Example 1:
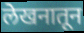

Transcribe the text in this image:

लेखनातून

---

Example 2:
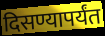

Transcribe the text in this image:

दिसण्यापर्यंत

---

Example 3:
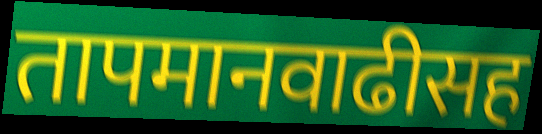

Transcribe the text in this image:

तापमानवाढीसह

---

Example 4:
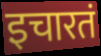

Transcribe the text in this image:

इचारतं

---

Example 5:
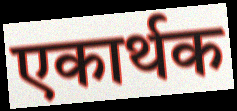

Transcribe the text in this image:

एकार्थक